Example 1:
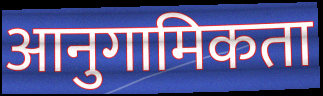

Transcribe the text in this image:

आनुगामिकता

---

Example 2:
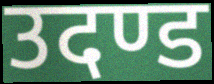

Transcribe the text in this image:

उदण्ड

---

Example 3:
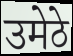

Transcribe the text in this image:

उमेठे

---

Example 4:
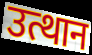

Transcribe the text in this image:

उत्थान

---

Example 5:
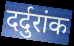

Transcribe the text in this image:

दर्दुरांक